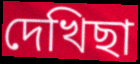
দেখিছা